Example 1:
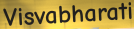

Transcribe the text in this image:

Visvabharati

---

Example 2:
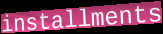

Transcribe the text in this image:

installments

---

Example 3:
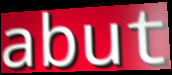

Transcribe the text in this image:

abut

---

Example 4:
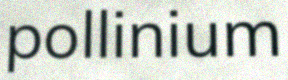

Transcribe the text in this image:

pollinium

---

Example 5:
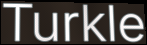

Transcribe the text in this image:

Turkle